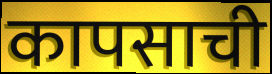
कापसाची